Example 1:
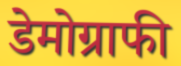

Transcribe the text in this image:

डेमोग्राफी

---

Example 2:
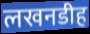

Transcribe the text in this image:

लखनडीह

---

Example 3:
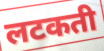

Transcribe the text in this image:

लटकती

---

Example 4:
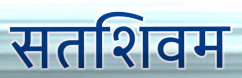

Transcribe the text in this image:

सतशिवम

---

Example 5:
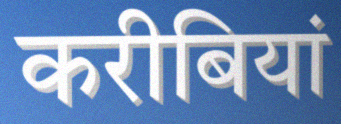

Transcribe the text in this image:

करीबियां